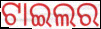
ଟାଇଲର